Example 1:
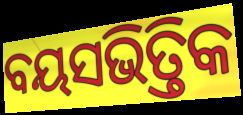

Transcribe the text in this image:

ବୟସଭିତ୍ତିକ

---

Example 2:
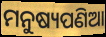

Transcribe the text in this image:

ମନୁଷ୍ୟପଣିଆ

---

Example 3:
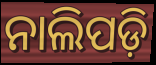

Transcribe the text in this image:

ନାଲିପଡ଼ି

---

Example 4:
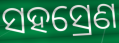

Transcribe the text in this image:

ସହସ୍ରେଣ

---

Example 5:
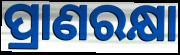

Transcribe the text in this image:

ପ୍ରାଣରକ୍ଷା